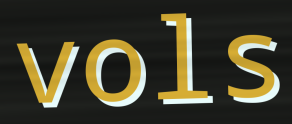
vols